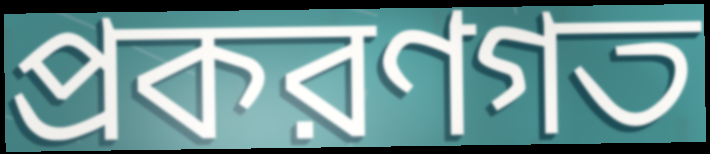
প্রকরণগত